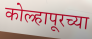
कोल्हापूरच्या